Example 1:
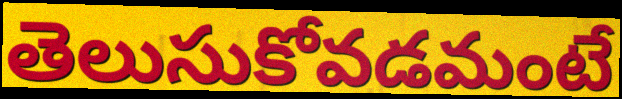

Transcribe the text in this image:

తెలుసుకోవడమంటే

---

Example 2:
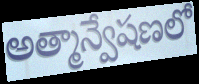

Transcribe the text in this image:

అత్మాన్వేషణలో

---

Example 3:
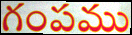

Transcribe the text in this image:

గంపము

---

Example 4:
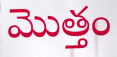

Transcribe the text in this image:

మొత్తం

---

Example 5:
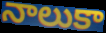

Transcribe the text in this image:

నాలుకా